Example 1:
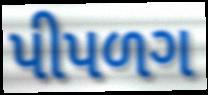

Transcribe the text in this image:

પીપળગ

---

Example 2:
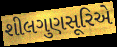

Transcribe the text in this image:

શીલગુણસૂરિએ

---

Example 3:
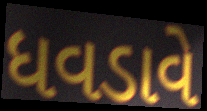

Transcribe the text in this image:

ધવડાવે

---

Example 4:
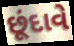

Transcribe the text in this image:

છૂંદાવે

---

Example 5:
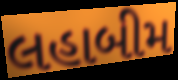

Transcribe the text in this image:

લહાબીમ